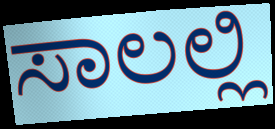
ಸಾಲಲ್ಲಿ